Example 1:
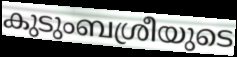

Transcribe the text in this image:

കുടുംബശ്രീയുടെ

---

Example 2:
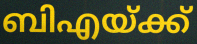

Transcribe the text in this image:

ബിഎയ്ക്ക്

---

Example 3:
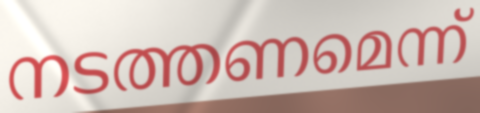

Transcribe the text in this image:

നടത്തണമെന്ന്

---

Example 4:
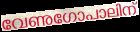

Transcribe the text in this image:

വേണുഗോപാലിന്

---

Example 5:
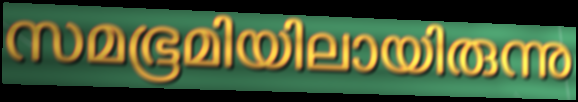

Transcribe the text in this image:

സമഭൂമിയിലായിരുന്നു